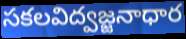
సకలవిద్వజ్జనాధార